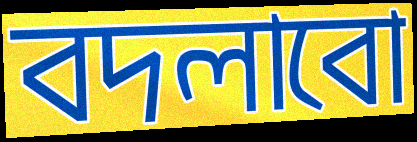
বদলাবো